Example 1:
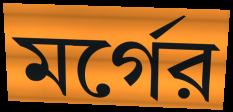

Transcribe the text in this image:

মর্গের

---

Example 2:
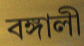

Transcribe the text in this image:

বঙ্গালী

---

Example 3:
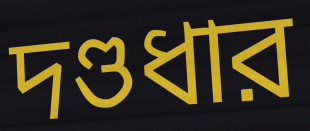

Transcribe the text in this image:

দণ্ডধার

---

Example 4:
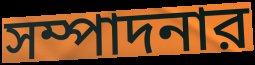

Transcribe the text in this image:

সম্পাদনার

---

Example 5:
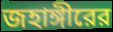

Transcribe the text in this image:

জহাঙ্গীরের